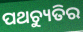
ପଥଚ୍ୟୁତିର